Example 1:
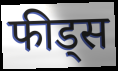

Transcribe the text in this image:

फीड्स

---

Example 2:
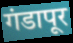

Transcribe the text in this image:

गंडापूर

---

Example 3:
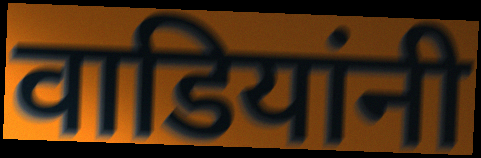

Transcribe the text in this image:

वाडियांनी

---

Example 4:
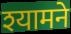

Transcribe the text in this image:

श्यामने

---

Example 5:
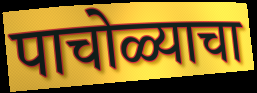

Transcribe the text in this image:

पाचोळ्याचा